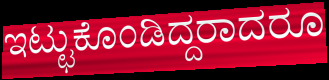
ಇಟ್ಟುಕೊಂಡಿದ್ದರಾದರೂ